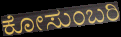
ಕೋಸುಂಬರಿ